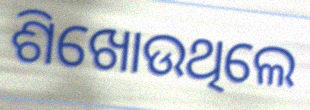
ଶିଖୋଉଥିଲେ